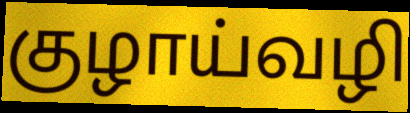
குழாய்வழி